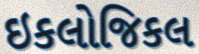
ઇકલોજિકલ